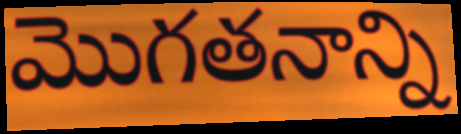
మొగతనాన్ని